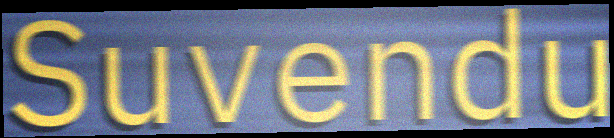
Suvendu